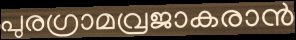
പുരഗ്രാമവ്രജാകരാൻ